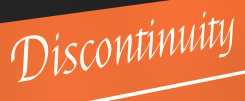
Discontinuity